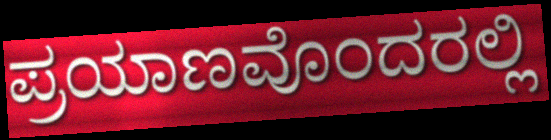
ಪ್ರಯಾಣವೊಂದರಲ್ಲಿ